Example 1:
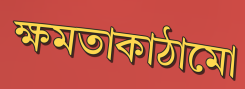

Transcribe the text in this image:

ক্ষমতাকাঠামো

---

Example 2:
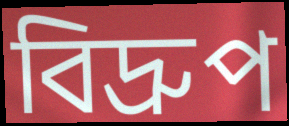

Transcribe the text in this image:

বিদ্রুপ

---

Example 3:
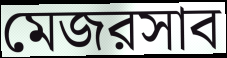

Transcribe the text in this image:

মেজরসাব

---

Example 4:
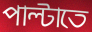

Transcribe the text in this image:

পাল্টাতে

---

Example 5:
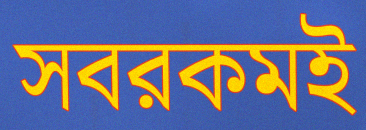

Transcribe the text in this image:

সবরকমই